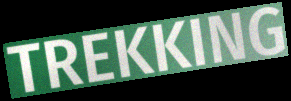
TREKKING